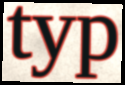
typ